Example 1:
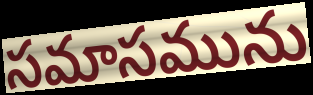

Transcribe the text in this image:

సమాసమును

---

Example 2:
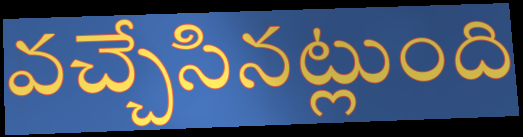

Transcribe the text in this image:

వచ్చేసినట్లుంది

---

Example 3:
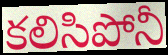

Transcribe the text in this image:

కలిసిపోనీ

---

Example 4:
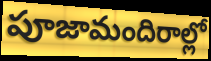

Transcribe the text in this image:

పూజామందిరాల్లో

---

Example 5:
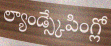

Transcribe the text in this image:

ల్యాండ్స్కేపింగ్లో